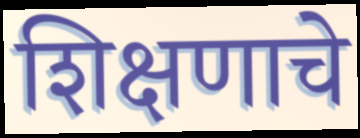
शिक्षणाचे